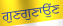
ਗੁਣਗੁਣਾਉਂਣ